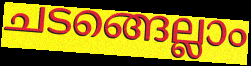
ചടങ്ങെല്ലാം